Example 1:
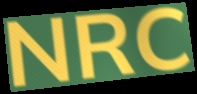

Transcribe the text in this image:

NRC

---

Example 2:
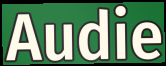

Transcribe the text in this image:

Audie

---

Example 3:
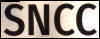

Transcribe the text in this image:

SNCC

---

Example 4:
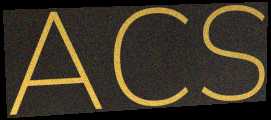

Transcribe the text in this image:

ACS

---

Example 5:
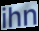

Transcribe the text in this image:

ihn